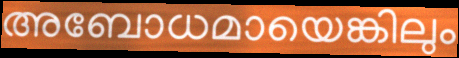
അബോധമായെങ്കിലും